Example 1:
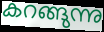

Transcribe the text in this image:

കറങ്ങുന്നു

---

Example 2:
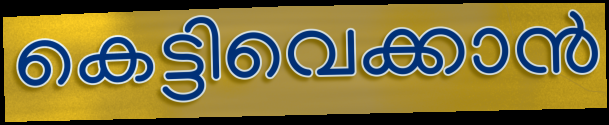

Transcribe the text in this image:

കെട്ടിവെക്കാൻ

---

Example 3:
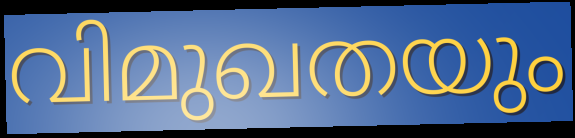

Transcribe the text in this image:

വിമുഖതയും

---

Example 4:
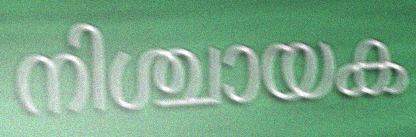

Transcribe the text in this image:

നിശ്ചായക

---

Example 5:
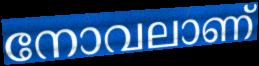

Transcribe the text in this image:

നോവലാണ്